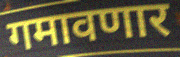
गमावणार